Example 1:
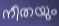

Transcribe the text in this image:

നീതയും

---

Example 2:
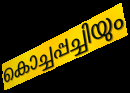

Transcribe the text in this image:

കൊച്ചപ്പച്ചിയും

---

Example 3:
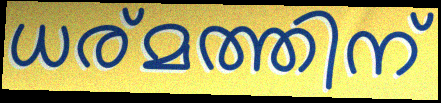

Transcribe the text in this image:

ധര്മത്തിന്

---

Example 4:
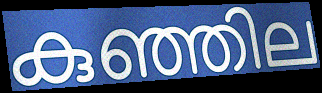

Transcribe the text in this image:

കുഞ്ഞില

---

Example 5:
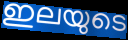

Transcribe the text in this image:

ഇലയുടെ